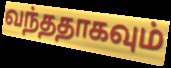
வந்ததாகவும்